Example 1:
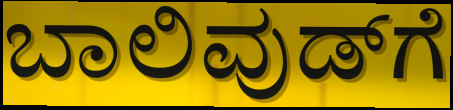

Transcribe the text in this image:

ಬಾಲಿವುಡ್‌ಗೆ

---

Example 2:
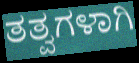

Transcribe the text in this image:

ತತ್ವಗಳಾಗಿ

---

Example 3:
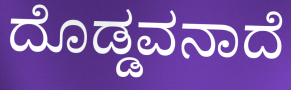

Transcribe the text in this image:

ದೊಡ್ಡವನಾದೆ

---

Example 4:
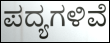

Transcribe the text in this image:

ಪದ್ಯಗಳಿವೆ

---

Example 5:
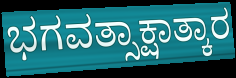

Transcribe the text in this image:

ಭಗವತ್ಸಾಕ್ಷಾತ್ಕಾರ